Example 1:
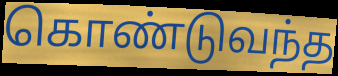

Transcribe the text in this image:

கொண்டுவந்த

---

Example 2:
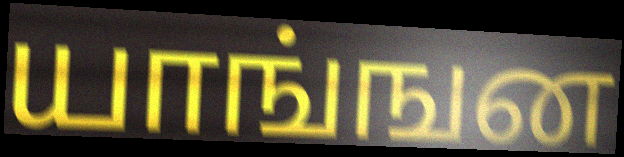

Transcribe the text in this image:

யாங்ஙன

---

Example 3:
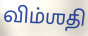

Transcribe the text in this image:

விம்ஶதி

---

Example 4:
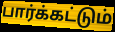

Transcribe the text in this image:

பார்க்கட்டும்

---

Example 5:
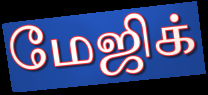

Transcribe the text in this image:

மேஜிக்